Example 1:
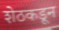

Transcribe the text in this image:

शेठकडून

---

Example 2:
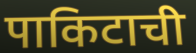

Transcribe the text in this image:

पाकिटाची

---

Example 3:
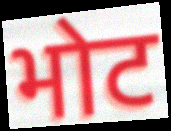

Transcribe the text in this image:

भोट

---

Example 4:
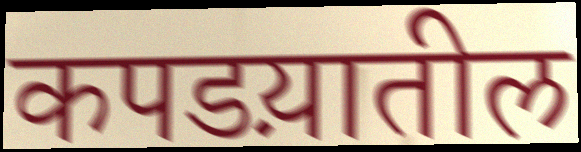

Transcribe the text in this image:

कपडय़ातील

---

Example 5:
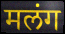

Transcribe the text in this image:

मलंग